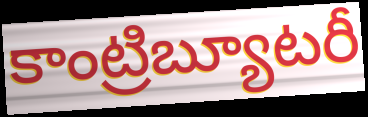
కాంట్రిబ్యూటరీ